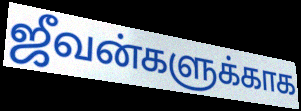
ஜீவன்களுக்காக